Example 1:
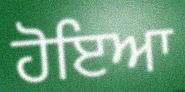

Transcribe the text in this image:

ਹੋਇਆ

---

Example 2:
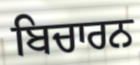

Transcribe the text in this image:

ਬਿਚਾਰਨ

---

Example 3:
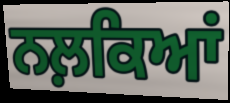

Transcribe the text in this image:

ਨਲ਼ਕਿਆਂ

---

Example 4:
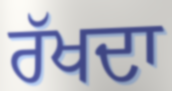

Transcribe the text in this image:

ਰੱਖਦਾ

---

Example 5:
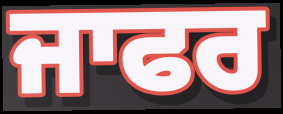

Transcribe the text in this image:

ਜਾਫਰ